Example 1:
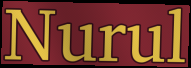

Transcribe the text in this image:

Nurul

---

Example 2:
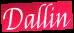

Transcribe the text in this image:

Dallin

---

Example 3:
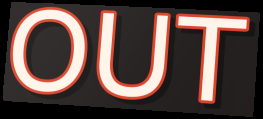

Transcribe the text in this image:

OUT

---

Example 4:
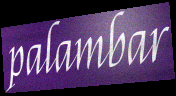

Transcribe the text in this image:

palambar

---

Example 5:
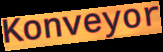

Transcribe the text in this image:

Konveyor